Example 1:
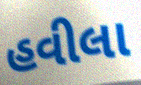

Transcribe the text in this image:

હવીલા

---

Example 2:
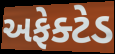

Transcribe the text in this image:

અફેક્ટેડ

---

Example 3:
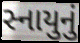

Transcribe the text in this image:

સ્નાયુનું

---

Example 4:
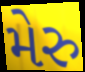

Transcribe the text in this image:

મેરુ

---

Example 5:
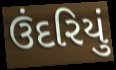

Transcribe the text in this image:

ઉંદરિયું